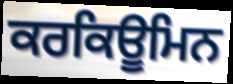
ਕਰਕਿਊਮਿਨ